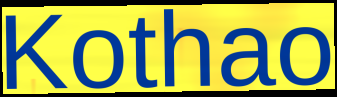
Kothao